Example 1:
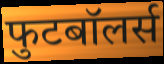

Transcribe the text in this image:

फुटबॉलर्स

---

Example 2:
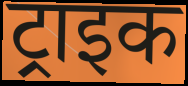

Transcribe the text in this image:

ट्राइक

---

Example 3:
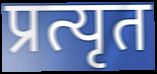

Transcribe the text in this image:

प्रत्यृत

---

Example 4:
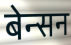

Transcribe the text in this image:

बेन्सन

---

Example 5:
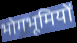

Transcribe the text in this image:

भोगभूमियों